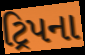
ટ્રિપના